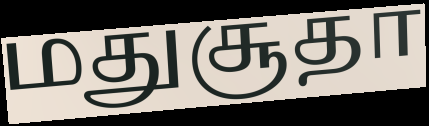
மதுசூதா